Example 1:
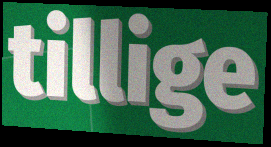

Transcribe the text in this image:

tillige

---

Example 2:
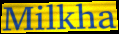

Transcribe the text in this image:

Milkha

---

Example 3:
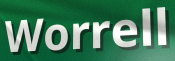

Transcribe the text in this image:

Worrell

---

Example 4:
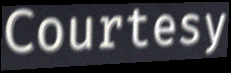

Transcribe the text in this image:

Courtesy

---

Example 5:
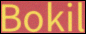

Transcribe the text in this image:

Bokil